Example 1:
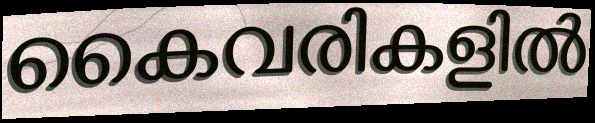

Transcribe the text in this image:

കൈവരികളിൽ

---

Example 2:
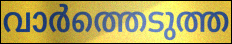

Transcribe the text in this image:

വാർത്തെടുത്ത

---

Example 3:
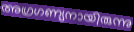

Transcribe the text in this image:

അഗ്രഗണ്യനായിരുന്നു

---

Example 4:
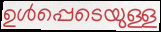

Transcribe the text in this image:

ഉൾപ്പെടെയുള്ള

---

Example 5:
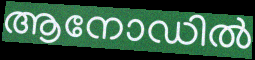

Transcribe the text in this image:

ആനോഡിൽ